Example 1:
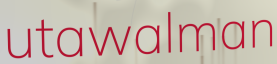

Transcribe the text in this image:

utawalman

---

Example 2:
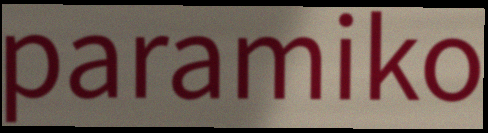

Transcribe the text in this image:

paramiko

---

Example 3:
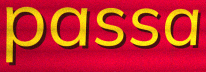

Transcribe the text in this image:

passa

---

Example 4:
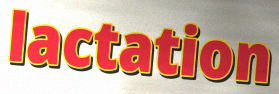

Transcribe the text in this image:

lactation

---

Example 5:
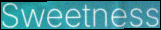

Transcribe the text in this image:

Sweetness